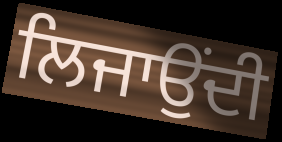
ਲਿਜਾਉਂਦੀ